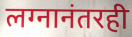
लग्नानंतरही